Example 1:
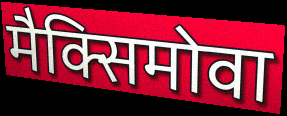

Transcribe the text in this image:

मैक्सिमोवा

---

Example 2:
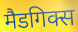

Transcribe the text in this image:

मैडगिक्स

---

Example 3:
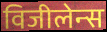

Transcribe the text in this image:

विजीलेन्स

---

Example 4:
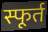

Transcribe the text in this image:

स्फूर्त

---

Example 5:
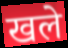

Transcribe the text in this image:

खले